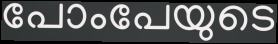
പോംപേയുടെ